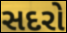
સદરો